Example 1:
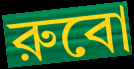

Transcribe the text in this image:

রুবো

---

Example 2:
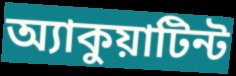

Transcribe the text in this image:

অ্যাকুয়াটিন্ট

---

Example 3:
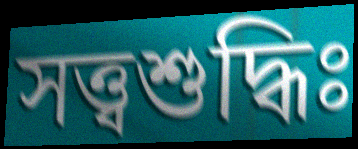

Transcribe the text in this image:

সত্ত্বশুদ্ধিঃ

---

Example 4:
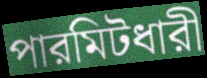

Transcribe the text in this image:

পারমিটধারী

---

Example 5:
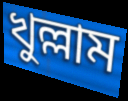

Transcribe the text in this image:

খুল্লাম